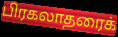
பிரகலாதரைக்